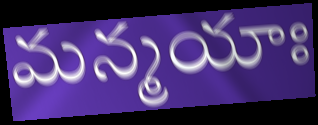
మన్మయాః